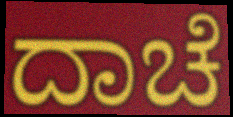
ದಾಚೆ